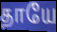
தாயே